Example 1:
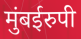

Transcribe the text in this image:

मुंबईरुपी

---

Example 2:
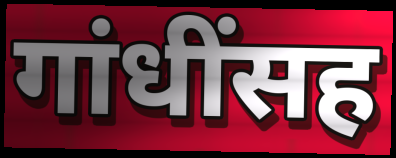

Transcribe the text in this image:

गांधींसह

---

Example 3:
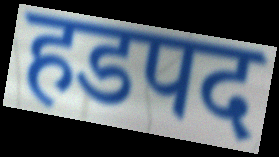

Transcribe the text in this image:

हडपद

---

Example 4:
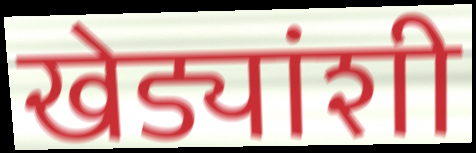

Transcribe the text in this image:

खेड्यांशी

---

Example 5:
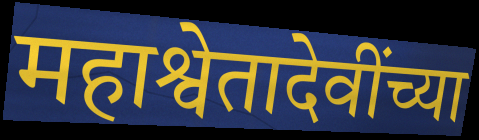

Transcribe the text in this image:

महाश्वेतादेवींच्या